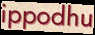
ippodhu